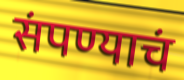
संपण्याचं